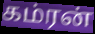
கம்ரன்